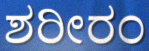
ಶರೀರಂ